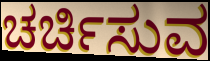
ಚರ್ಚಿಸುವ